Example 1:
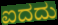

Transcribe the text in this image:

ಐದದು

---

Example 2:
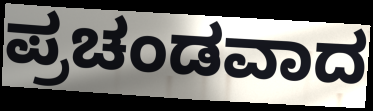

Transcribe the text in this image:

ಪ್ರಚಂಡವಾದ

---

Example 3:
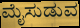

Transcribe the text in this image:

ಮೈಸುಡುವ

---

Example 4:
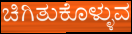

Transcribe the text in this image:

ಚಿಗಿತುಕೊಳ್ಳುವ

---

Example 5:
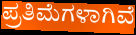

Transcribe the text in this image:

ಪ್ರತಿಮೆಗಳಾಗಿವೆ